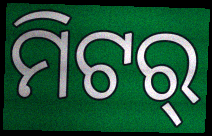
ମିଟର୍